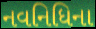
નવનિધિના